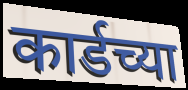
कार्डच्या